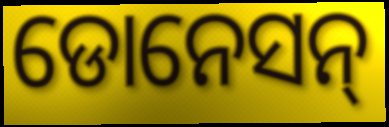
ଡୋନେସନ୍